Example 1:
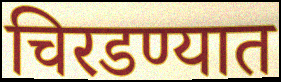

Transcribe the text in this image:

चिरडण्यात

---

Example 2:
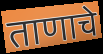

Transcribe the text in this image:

ताणाचे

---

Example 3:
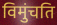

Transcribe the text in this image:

विमुंचति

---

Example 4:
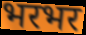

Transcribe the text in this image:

भरभर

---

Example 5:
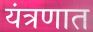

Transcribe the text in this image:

यंत्रणात